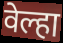
वेल्हा